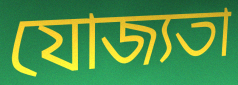
যোজ্যতা